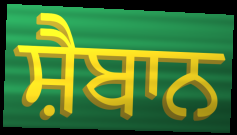
ਸ਼ੈਬਾਨ